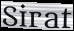
Sirat